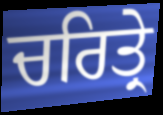
ਚਰਿਤ੍ਰੇ